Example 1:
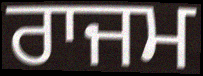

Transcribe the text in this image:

ਰਾਜਮ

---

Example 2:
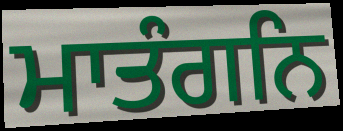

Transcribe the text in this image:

ਮਾਤੰਗਨਿ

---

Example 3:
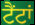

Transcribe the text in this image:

ਟੈਂਟਾਂ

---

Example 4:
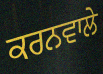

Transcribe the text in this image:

ਕਰਨਵਾਲੇ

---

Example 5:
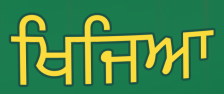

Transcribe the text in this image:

ਖਿਜਿਆ